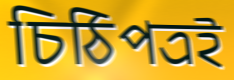
চিঠিপত্রই